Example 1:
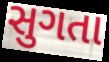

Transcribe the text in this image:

સુગતા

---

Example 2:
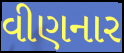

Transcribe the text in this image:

વીણનાર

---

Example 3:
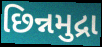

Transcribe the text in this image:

છિન્નમુદ્રા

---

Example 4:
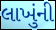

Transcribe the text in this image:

લાખુંની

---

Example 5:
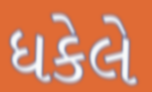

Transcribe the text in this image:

ધકેલે